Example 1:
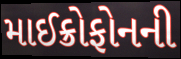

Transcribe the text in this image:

માઈક્રોફોનની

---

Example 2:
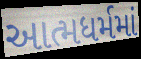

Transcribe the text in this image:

આત્મધર્મમાં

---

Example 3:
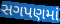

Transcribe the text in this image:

સગપણમાં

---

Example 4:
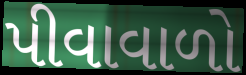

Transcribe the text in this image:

પીવાવાળો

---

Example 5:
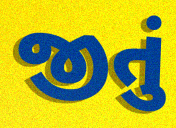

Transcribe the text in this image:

જીતું